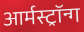
आर्मस्ट्रॉन्ग